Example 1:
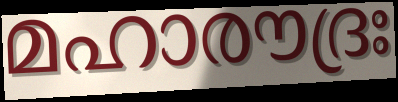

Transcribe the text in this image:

മഹാരൗദ്രഃ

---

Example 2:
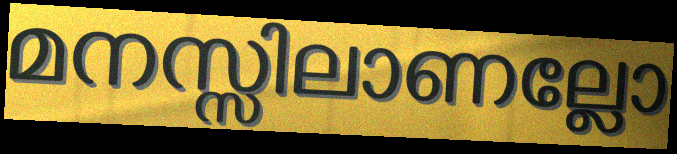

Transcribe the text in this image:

മനസ്സിലാണല്ലോ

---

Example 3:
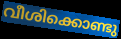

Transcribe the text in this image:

വീശിക്കൊണ്ടു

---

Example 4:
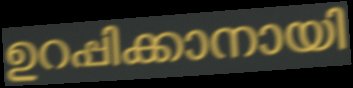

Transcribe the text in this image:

ഉറപ്പിക്കാനായി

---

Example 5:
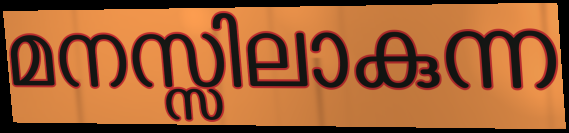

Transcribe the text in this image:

മനസ്സിലാകുന്ന